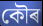
কৌৰ